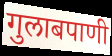
गुलाबपाणी